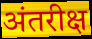
अंतरीक्ष